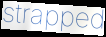
strapped